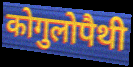
कोगुलोपैथी